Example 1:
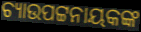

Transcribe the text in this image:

ଚ୍ୟାଉପଟ୍ଟନାୟକଙ୍କ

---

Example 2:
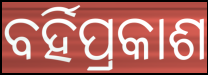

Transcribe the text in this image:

ବର୍ହିପ୍ରକାଶ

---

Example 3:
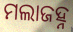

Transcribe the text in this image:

ମଲାଜହ୍ନ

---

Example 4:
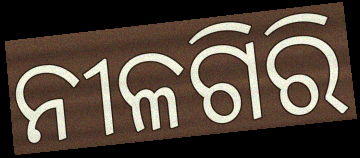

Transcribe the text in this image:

ନୀଳଗିରି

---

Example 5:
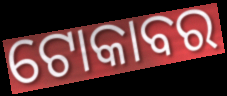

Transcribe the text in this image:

ଟୋକାବର